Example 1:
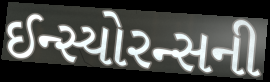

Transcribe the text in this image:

ઈન્સ્યોરન્સની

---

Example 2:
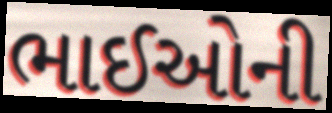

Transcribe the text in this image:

ભાઈઓની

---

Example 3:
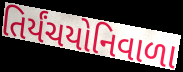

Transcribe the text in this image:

તિર્યંચયોનિવાળા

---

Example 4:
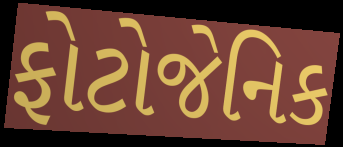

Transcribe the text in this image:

ફોટોજેનિક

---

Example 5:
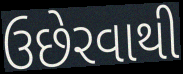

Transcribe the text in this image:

ઉછેરવાથી